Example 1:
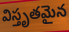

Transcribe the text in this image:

విస్తృతమైన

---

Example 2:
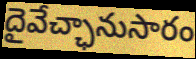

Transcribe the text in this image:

దైవేచ్ఛానుసారం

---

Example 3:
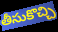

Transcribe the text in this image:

తీసుకొచ్చి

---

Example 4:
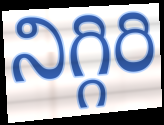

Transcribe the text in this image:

నిగ్గిరి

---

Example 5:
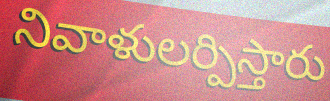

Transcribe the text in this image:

నివాళులర్పిస్తారు